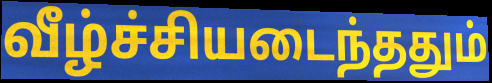
வீழ்ச்சியடைந்ததும்